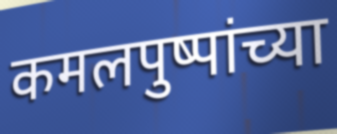
कमलपुष्पांच्या